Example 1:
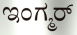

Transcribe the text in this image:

ಇಂಗ್ಮರ್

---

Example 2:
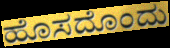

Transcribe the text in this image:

ಹೊಸದೊಂದು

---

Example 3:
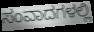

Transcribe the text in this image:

ಸಂವಾದಗಳಲ್ಲಿ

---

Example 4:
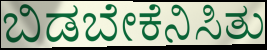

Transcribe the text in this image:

ಬಿಡಬೇಕೆನಿಸಿತು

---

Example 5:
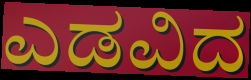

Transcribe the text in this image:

ಎಡವಿದ